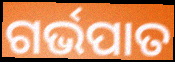
ଗର୍ଭପାତ